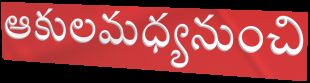
ఆకులమధ్యనుంచి